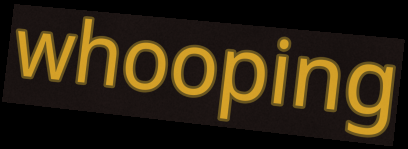
whooping